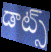
డాట్స్